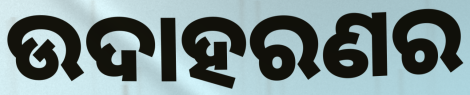
ଉଦାହରଣର